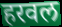
हरवल